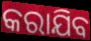
କରାଯିବ